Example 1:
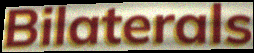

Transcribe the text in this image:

Bilaterals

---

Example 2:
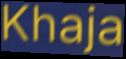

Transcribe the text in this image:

Khaja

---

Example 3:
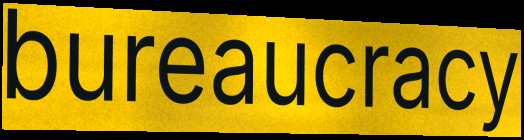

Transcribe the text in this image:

bureaucracy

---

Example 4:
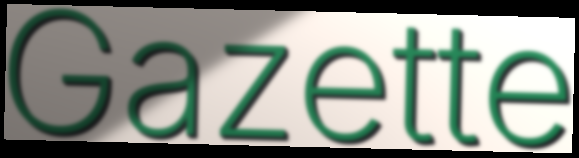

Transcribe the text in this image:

Gazette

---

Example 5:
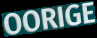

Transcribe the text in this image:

OORIGE